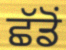
ਛੱਡੋਂ